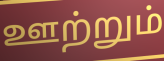
ஊற்றும்